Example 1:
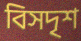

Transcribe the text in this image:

বিসদৃশ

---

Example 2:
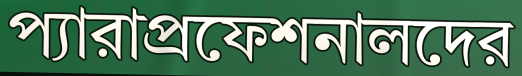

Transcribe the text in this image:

প্যারাপ্রফেশনালদের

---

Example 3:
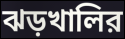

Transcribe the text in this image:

ঝড়খালির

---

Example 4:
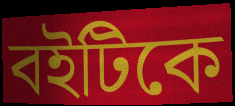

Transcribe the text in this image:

বইটিকে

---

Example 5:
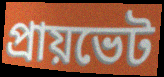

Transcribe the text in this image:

প্রায়ভেট